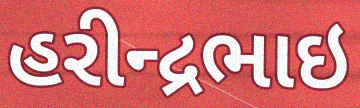
હરીન્દ્રભાઇ